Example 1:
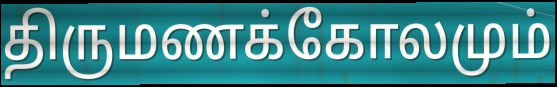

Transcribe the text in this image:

திருமணக்கோலமும்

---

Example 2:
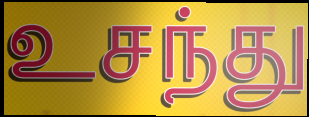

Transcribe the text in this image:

உசந்து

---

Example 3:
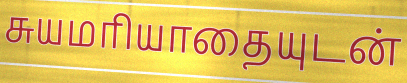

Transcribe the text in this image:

சுயமரியாதையுடன்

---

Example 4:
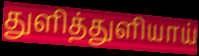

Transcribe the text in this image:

துளித்துளியாய்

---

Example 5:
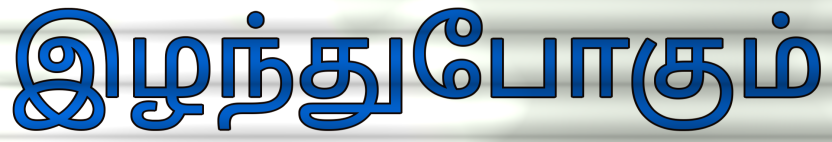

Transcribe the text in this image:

இழந்துபோகும்